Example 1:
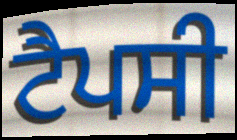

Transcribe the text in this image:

ਟੈਪਸੀ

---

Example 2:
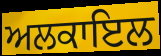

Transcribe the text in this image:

ਅਲਕਾਇਲ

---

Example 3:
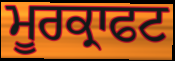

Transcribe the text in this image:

ਮੂਰਕ੍ਰਾਫਟ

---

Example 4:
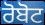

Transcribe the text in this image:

ਰੋਬੋਟ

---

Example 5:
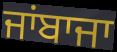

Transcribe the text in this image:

ਜਾਂਬਾਜਾ